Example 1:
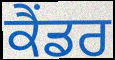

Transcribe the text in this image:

ਕੈਂਡਰ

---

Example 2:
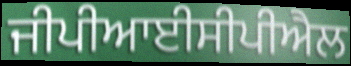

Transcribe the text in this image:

ਜੀਪੀਆਈਸੀਪੀਐਲ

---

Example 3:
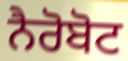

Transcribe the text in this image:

ਨੈਰੋਬੋਟ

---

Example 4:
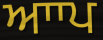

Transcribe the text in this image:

ਆਾਪ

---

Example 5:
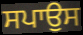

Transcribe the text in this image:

ਸਪਾਉਸ